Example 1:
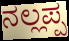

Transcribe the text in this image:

ನಲ್ಲಪ್ಪ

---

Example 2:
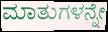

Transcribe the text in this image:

ಮಾತುಗಳನ್ನೇ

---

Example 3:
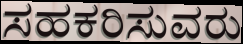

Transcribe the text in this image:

ಸಹಕರಿಸುವರು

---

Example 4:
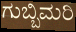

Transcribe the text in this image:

ಗುಬ್ಬಿಮರಿ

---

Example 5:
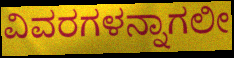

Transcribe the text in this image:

ವಿವರಗಳನ್ನಾಗಲೀ